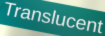
Translucent